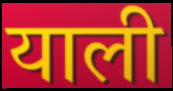
याली